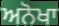
ਅਨੋਖਾ